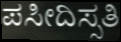
ಪಸೀದಿಸ್ಸತಿ